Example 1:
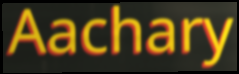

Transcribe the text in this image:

Aachary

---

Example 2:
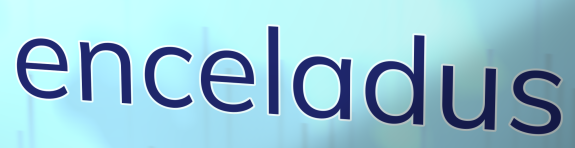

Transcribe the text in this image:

enceladus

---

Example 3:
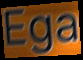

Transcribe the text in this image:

Ega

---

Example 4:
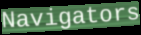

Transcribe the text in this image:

Navigators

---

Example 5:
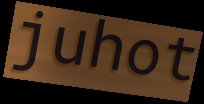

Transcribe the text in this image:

juhot